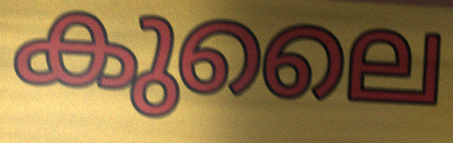
കുലൈ